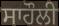
ਸਾਹੌਲੀ